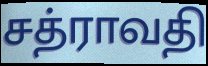
சத்ராவதி